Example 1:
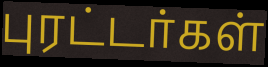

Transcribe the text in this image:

புரட்டர்கள்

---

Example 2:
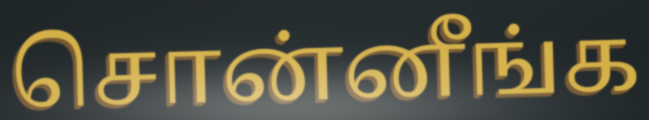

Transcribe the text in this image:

சொன்னீங்க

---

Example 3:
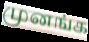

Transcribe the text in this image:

முனங்க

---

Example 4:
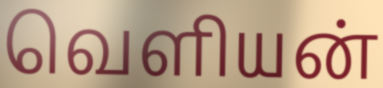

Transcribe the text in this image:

வெளியன்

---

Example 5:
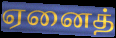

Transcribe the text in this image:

ஏனைத்